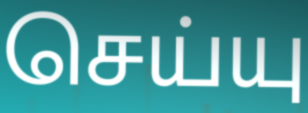
செய்யு